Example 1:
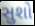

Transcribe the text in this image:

સુશો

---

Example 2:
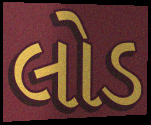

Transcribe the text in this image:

લોડ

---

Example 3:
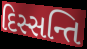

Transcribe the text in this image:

દિસ્સન્તિ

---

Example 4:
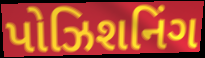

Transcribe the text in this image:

પોઝિશનિંગ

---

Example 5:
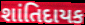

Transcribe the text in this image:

શાંતિદાયક